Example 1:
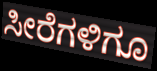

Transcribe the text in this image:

ಸೀರೆಗಳಿಗೂ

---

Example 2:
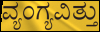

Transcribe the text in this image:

ವ್ಯಂಗ್ಯವಿತ್ತು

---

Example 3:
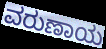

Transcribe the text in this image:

ವರುಣಾಯ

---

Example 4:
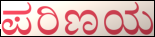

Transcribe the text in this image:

ಪರಿಣಯ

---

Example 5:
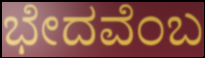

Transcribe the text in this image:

ಭೇದವೆಂಬ